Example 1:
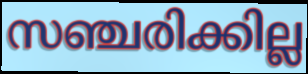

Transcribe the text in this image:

സഞ്ചരിക്കില്ല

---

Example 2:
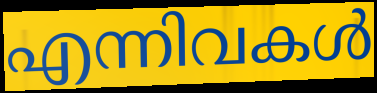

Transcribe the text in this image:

എന്നിവകൾ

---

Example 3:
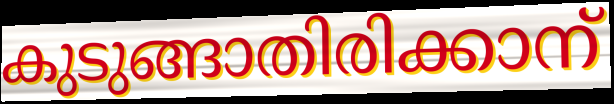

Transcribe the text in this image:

കുടുങ്ങാതിരിക്കാന്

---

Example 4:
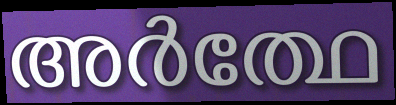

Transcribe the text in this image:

അർത്ഥേ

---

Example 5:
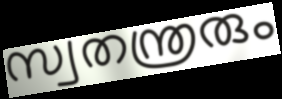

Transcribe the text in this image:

സ്വതന്ത്രരും